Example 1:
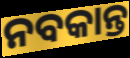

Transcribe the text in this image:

ନବକାନ୍ତ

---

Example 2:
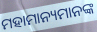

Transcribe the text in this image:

ମହାମାନ୍ୟମାନଙ୍କ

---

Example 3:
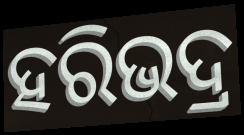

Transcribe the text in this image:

ହରିଭଦ୍ର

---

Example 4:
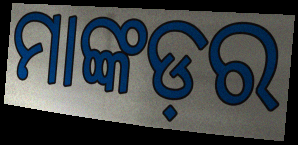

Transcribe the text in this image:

ମାଙ୍କଡ଼ର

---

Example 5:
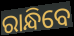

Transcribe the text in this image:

ରାନ୍ଧିବେ